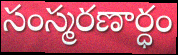
సంస్మరణార్ధం